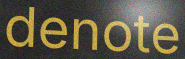
denote